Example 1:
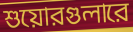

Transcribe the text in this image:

শুয়োরগুলারে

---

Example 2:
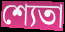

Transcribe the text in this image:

শ্যেতা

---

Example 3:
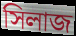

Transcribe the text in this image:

সিলাজ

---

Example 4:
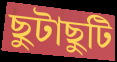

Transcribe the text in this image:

ছুটাছুটি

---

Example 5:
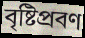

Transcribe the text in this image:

বৃষ্টিপ্রবণ